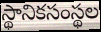
స్థానికసంస్థల